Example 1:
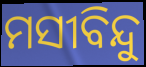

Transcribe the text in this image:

ମସୀବିନ୍ଦୁ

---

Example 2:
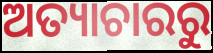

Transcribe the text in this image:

ଅତ୍ୟାଚାରରୁ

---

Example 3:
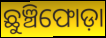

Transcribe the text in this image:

ଛୁଞ୍ଚିଫୋଡ଼ା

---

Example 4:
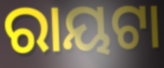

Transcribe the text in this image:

ରାୟଟା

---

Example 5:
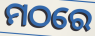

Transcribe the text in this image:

ମଠରେ